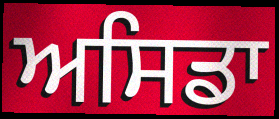
ਅਸਿਡਾ